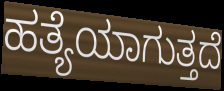
ಹತ್ಯೆಯಾಗುತ್ತದೆ